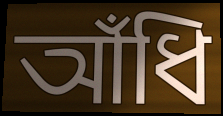
আঁধি